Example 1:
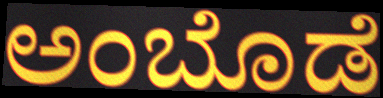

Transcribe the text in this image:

ಅಂಬೊಡೆ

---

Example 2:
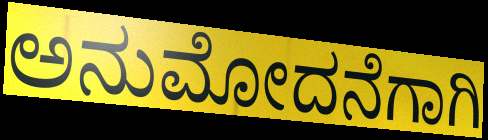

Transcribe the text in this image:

ಅನುಮೋದನೆಗಾಗಿ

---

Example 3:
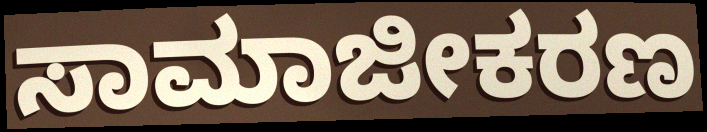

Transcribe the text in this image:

ಸಾಮಾಜೀಕರಣ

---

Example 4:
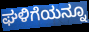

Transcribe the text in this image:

ಘಳಿಗೆಯನ್ನೂ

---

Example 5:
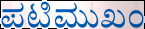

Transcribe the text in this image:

ಪಟಿಮುಖಂ